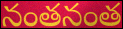
నంతనంత